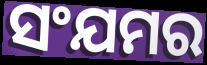
ସଂଯମର